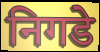
निगडे